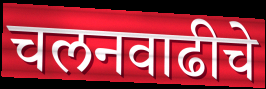
चलनवाढीचे